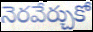
నెరవేర్చుకో